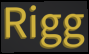
Rigg